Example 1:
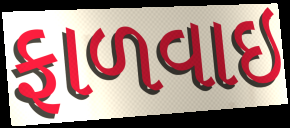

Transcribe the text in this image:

ફાળવાઇ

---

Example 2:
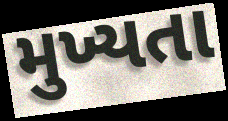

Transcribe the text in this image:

મુખ્યતા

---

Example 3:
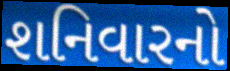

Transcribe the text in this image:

શનિવારનો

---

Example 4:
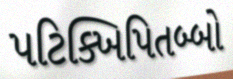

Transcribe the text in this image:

પટિક્ખિપિતબ્બો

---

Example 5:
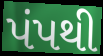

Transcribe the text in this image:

પંપથી